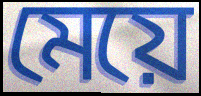
মেয়ে